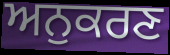
ਅਨੁਕਰਣ